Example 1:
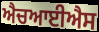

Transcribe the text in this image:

ਐਚਆਈਐਸ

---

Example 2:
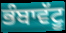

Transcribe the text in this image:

ਭੰਬਾਵੱਟੂ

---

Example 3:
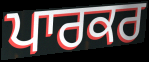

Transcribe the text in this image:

ਪਾਰਕਰ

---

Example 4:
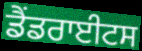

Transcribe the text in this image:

ਡੈਂਡਰਾਈਟਸ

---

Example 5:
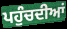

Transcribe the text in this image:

ਪਹੁੰਚਦੀਆਂ